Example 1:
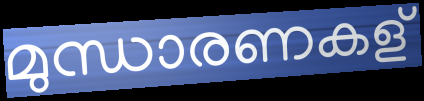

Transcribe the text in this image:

മുന്ധാരണകള്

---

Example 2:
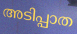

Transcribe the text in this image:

അടിപ്പാത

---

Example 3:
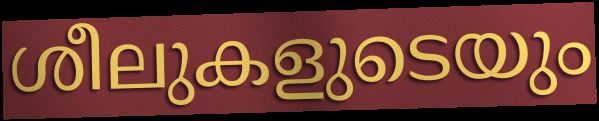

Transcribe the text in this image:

ശീലുകളുടെയും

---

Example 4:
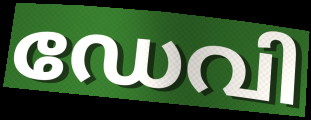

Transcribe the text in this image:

ഡേവി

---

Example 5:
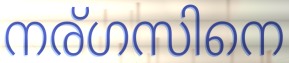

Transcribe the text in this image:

നര്ഗസിനെ